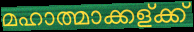
മഹാത്മാക്കള്ക്ക്